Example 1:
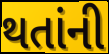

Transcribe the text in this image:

થતાંની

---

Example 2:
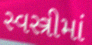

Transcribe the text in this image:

સ્વસ્ત્રીમાં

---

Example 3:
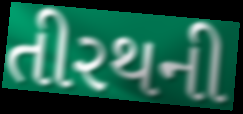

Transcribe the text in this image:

તીરથની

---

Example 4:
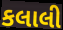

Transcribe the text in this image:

કલાલી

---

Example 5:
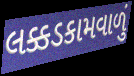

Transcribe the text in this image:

લક્કડકામવાળું